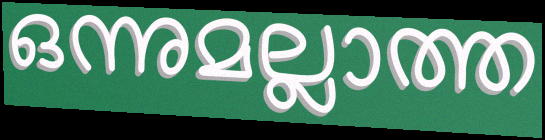
ഒന്നുമല്ലാത്ത